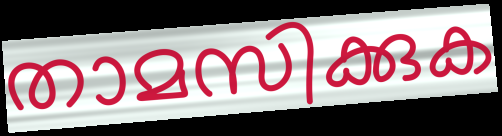
താമസിക്കുക